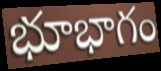
భూభాగం